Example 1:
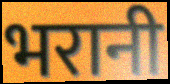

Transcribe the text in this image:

भरानी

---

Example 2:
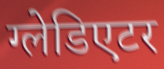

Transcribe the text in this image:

ग्लेडिएटर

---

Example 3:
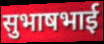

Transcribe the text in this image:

सुभाषभाई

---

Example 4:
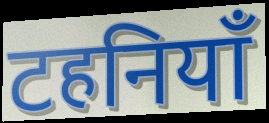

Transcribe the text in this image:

टहनियाँ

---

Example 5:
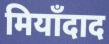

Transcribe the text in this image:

मियाँदाद